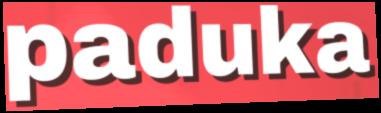
paduka